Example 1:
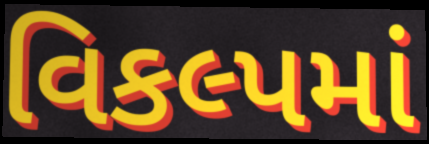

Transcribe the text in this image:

વિકલ્પમાં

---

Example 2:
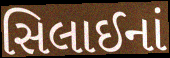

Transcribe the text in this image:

સિલાઈનાં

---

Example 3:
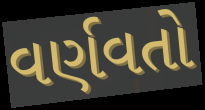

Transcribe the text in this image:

વર્ણવતો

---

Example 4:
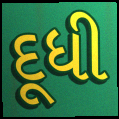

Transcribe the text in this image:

દૂધી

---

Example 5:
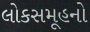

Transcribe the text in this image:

લોકસમૂહનો